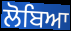
ਲੋਬਿਆ